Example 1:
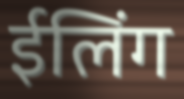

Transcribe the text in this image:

ईलिंग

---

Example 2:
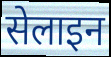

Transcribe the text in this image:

सेलाइन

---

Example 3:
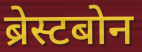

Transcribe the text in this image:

ब्रेस्टबोन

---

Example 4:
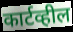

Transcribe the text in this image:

कार्टव्हील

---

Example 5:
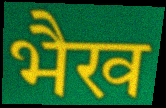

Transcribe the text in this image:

भैख